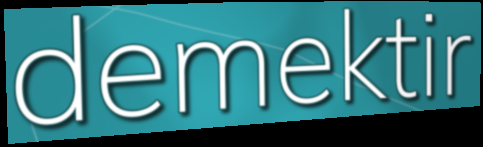
demektir